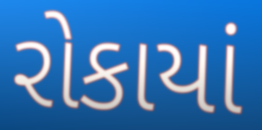
રોકાયાં